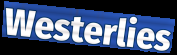
Westerlies